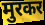
मुरकर